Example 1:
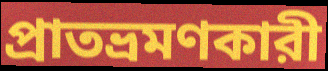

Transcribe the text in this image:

প্রাতভ্রমণকারী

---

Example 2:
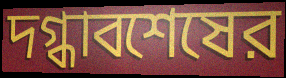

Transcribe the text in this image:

দগ্ধাবশেষের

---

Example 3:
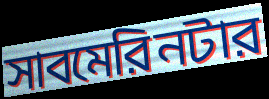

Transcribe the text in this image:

সাবমেরিনটার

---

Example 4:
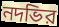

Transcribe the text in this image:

নদভির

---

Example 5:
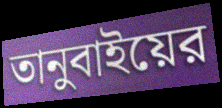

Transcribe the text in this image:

তানুবাইয়ের